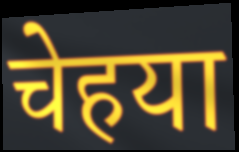
चेहया